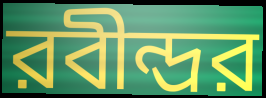
রবীন্দ্রর